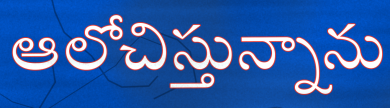
ఆలోచిస్తున్నాను